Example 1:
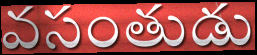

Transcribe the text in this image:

వసంతుడు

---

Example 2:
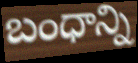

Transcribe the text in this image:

బంధాన్ని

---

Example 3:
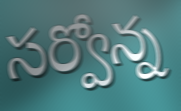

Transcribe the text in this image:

సర్వోన్న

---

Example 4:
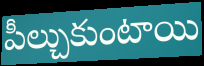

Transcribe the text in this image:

పీల్చుకుంటాయి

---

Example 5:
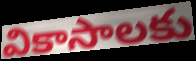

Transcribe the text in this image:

వికాసాలకు